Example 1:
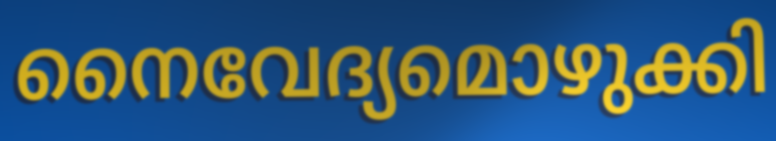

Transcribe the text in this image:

നൈവേദ്യമൊഴുക്കി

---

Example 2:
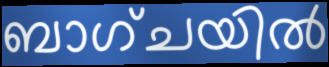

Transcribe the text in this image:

ബാഗ്ചയിൽ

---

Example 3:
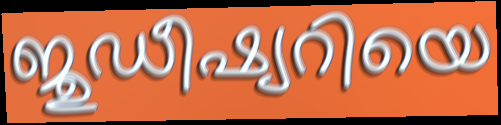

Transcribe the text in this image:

ജുഡീഷ്യറിയെ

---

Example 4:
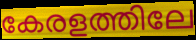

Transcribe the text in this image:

കേരളത്തിലേ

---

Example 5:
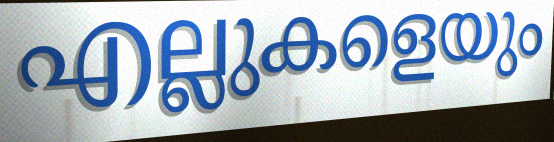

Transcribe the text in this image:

എല്ലുകളെയും